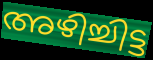
അഴിച്ചിട്ട